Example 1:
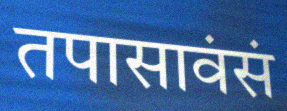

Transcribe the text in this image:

तपासावंसं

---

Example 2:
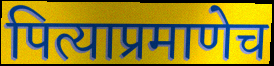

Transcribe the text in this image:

पित्याप्रमाणेच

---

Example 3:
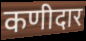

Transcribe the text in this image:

कणीदार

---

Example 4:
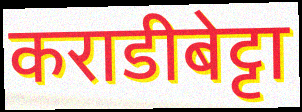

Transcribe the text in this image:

कराडीबेट्टा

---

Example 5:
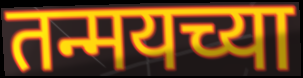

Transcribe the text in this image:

तन्मयच्या